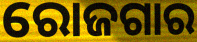
ରୋଜଗାର